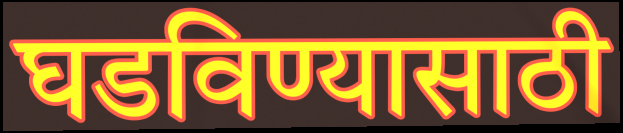
घडविण्यासाठी